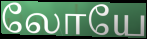
லோயே